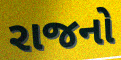
રાજનો